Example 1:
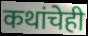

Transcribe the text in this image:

कथांचेही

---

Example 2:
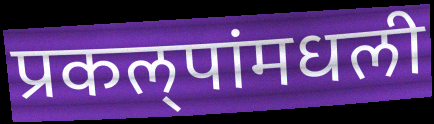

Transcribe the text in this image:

प्रकल्पांमधली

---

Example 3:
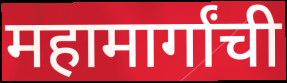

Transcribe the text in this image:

महामार्गांची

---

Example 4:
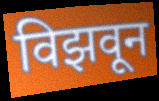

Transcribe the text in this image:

विझवून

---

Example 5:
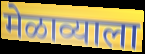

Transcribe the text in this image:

मेळाव्याला